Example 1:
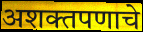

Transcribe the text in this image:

अशक्तपणाचे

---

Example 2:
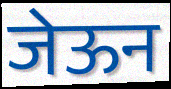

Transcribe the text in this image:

जेऊन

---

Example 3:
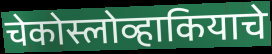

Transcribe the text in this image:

चेकोस्लोव्हाकियाचे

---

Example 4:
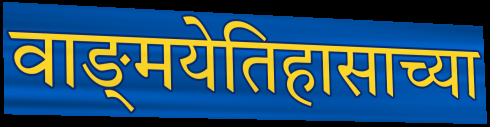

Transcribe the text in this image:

वाङ्‌मयेतिहासाच्या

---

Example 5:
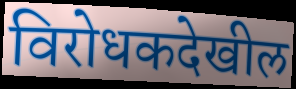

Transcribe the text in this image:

विरोधकदेखील